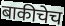
बाकीचेच